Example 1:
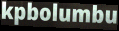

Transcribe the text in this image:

kpbolumbu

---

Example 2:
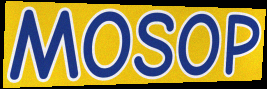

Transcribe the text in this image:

MOSOP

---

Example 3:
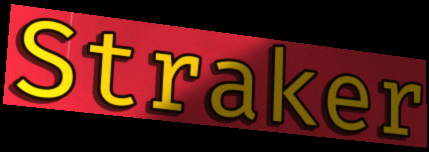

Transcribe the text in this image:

Straker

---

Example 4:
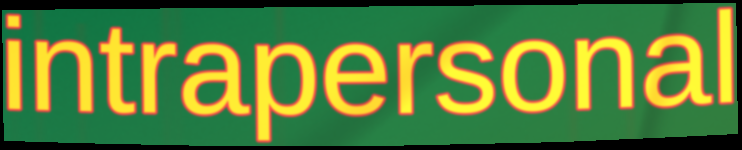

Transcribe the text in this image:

intrapersonal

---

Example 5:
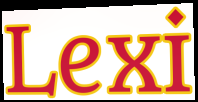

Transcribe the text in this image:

Lexi